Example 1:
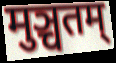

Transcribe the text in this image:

मुञ्चतम्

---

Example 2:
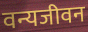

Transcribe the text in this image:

वन्यजीवन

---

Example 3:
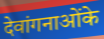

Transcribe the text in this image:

देवांगनाओंके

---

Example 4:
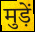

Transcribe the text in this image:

मुड़ें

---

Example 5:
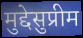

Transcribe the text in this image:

मुद्देसुप्रीम